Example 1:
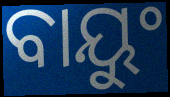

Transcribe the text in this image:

ବାୟୁଂ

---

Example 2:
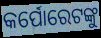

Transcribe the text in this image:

କର୍ପୋରେଟଙ୍କୁ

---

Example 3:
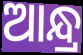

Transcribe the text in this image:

ଆନ୍ଧ୍ର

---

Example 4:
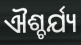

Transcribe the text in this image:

ଐଶ୍ଚର୍ଯ୍ୟ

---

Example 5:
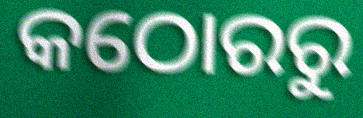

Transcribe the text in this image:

କଠୋରରୁ